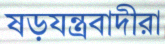
ষড়যন্ত্রবাদীরা